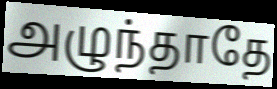
அழுந்தாதே